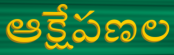
ఆక్షేపణల